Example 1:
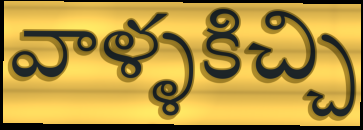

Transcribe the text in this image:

వాళ్ళకిచ్చి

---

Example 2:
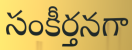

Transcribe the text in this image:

సంకీర్తనగా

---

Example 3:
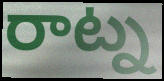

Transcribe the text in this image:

రాట్న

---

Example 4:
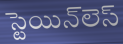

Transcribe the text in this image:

స్టెయిన్‌లెస్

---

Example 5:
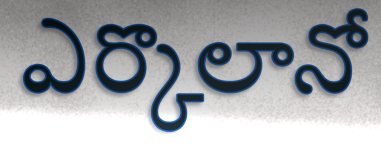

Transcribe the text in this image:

ఎర్కొలానో